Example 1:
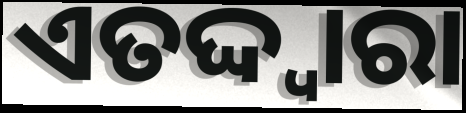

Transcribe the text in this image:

ଏତଦ୍ଦ୍ୱାରା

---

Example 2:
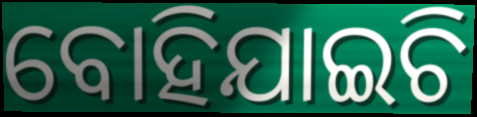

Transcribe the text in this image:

ବୋହିଯାଇଚି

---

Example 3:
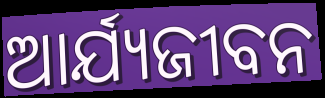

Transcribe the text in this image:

ଆର୍ଯ୍ୟଜୀବନ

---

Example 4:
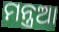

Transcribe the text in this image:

ମନ୍ତ୍ରଆ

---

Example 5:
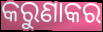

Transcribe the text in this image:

କରୁଣାକର